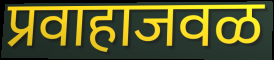
प्रवाहाजवळ